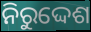
ନିରୁଦ୍ଦେଶ